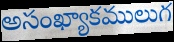
అసంఖ్యాకములుగ